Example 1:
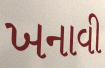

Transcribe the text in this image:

ખનાવી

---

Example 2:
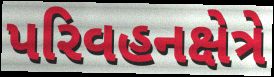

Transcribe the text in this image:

પરિવહનક્ષેત્રે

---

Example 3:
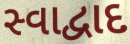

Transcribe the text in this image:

સ્વાદ્વાદ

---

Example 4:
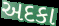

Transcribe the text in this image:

અદકા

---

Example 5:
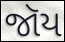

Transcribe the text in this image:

જૉય